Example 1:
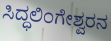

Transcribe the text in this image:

ಸಿದ್ಧಲಿಂಗೇಶ್ವರನ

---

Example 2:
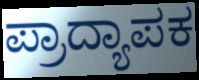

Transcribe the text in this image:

ಪ್ರಾದ್ಯಾಪಕ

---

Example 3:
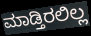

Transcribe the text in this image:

ಮಾಡ್ತಿರಲಿಲ್ಲ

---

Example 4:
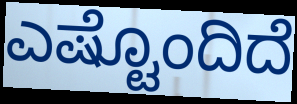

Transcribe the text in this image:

ಎಷ್ಟೊಂದಿದೆ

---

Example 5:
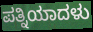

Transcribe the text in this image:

ಪತ್ನಿಯಾದಳು